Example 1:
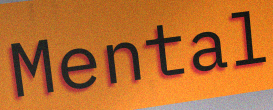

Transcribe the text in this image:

Mental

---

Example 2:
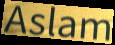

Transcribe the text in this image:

Aslam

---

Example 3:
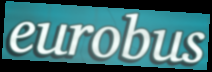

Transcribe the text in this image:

eurobus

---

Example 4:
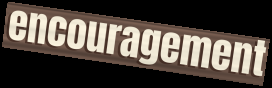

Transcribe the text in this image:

encouragement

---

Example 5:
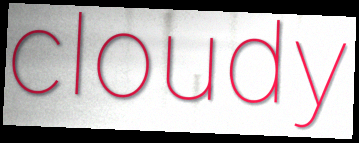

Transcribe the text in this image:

cloudy